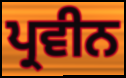
ਪ੍ਰਵੀਨ